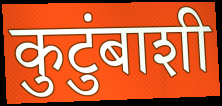
कुटुंबाशी